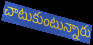
చాటుకుంటున్నారు